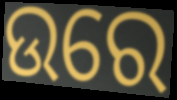
ଉରେ